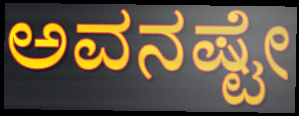
ಅವನಷ್ಟೇ